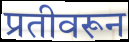
प्रतीवरून